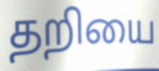
தறியை